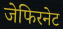
जेफिरनेट